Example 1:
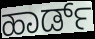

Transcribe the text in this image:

ಹಾರ್ಡ್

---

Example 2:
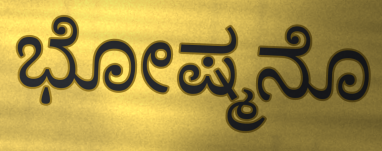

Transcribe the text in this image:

ಭೋಷ್ಮನೊ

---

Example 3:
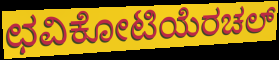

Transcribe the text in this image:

ಛವಿಕೋಟಿಯೆರಚಲ್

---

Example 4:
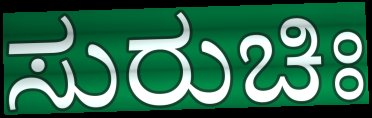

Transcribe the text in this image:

ಸುರುಚಿಃ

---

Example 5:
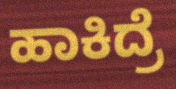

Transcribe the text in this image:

ಹಾಕಿದ್ರೆ